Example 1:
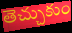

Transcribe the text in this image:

తెచ్చుకుం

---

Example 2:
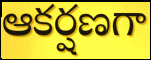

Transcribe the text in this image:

ఆకర్షణగా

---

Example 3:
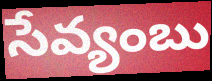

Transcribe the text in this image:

సేవ్యంబు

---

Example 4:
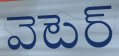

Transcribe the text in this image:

వెటెర్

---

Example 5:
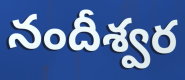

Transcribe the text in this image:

నందీశ్వర